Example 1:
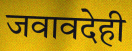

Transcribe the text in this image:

जवावदेही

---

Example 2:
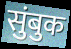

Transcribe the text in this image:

सुंबुक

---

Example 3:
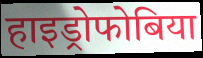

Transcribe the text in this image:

हाइड्रोफोबिया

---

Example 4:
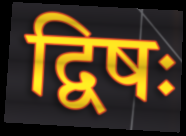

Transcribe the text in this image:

द्विषः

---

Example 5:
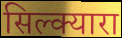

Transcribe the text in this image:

सिल्क्यारा